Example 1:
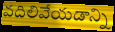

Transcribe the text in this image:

వదిలివేయడాన్ని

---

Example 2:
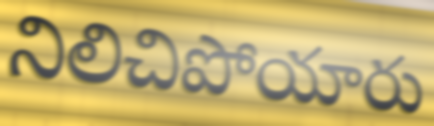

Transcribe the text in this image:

నిలిచిపోయారు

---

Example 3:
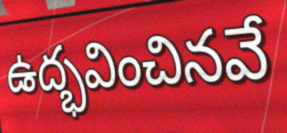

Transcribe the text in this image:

ఉద్భవించినవే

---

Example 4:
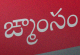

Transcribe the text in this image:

ఙ్మాంసం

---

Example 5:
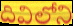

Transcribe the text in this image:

దివిలోని